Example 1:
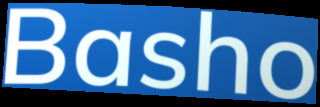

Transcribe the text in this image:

Basho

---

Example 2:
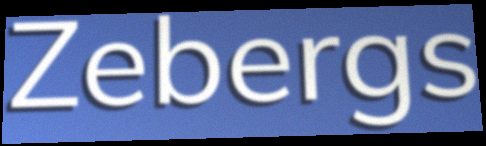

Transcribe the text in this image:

Zebergs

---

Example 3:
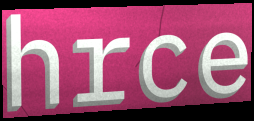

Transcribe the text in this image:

hrce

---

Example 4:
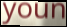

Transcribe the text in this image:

youn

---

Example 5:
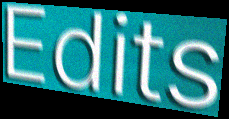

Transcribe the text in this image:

Edits